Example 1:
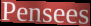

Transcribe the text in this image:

Pensees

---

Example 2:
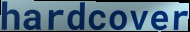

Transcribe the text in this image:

hardcover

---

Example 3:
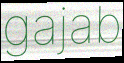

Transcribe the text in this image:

gajab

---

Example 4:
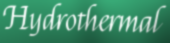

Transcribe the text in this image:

Hydrothermal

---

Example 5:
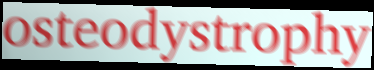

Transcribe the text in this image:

osteodystrophy